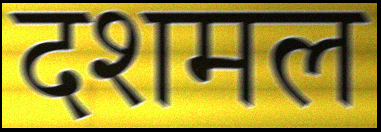
दशमल